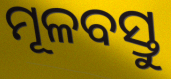
ମୂଳବସ୍ତୁ